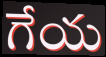
గేయ